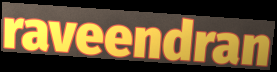
raveendran